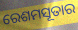
ରେଶମସୂତାର